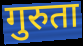
गुरुता